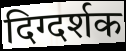
दिग्‍दर्शक